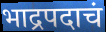
भाद्रपदाचं